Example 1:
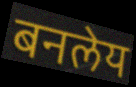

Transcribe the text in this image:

बनलेय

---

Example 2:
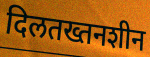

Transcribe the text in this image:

दिलतख्तनशीन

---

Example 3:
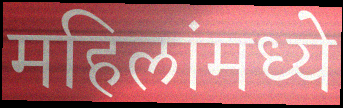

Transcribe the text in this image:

महिलांमध्ये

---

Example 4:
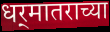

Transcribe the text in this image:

धर्मातराच्या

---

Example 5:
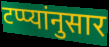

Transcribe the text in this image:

टप्प्यांनुसार